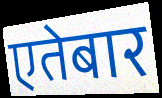
एतेबार